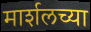
मार्शलच्या